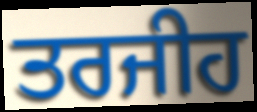
ਤਰਜੀਹ